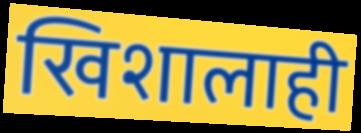
खिशालाही